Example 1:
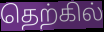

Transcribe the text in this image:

தெற்கில்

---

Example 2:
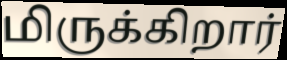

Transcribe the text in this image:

மிருக்கிறார்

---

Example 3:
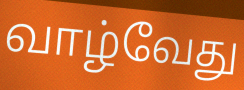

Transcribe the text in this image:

வாழ்வேது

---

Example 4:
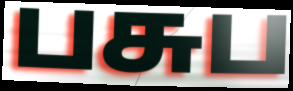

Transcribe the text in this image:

பசுப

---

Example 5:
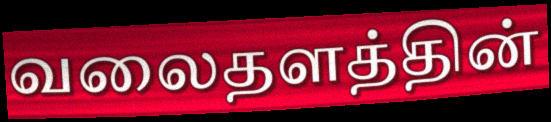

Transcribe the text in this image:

வலைதளத்தின்